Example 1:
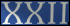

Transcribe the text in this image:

XXII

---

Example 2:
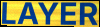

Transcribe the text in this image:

LAYER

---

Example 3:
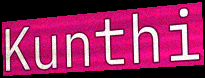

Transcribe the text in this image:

Kunthi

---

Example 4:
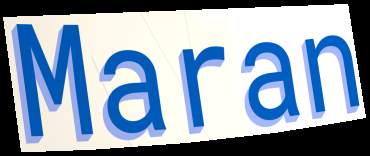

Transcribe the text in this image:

Maran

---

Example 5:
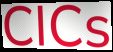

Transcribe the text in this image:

CICs